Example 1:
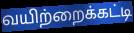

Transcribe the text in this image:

வயிற்றைக்கட்டி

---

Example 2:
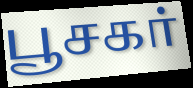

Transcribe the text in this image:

பூசகர்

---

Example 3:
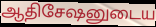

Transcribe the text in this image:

ஆதிசேஷனுடைய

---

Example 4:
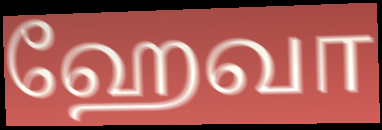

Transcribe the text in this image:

ஹேவா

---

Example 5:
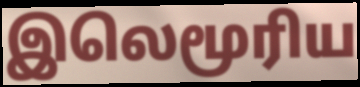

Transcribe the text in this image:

இலெமூரிய